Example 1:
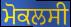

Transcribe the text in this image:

ਮੋਕਲਸੀ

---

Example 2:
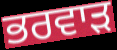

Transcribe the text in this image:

ਭਰਵਾੜ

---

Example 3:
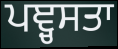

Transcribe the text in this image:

ਪਞ੍ਚਸਤਾ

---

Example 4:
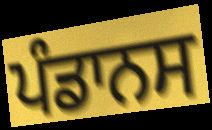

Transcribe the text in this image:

ਪੰਡਾਨਸ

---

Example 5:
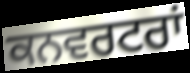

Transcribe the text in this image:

ਕਨਵਰਟਰਾਂ